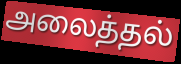
அலைத்தல்